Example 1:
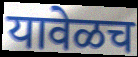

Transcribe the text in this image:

यावेळच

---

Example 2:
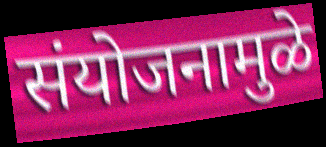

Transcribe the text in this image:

संयोजनामुळे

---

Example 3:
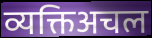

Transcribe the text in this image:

व्यक्तिअचल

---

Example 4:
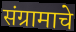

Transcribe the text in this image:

संग्रामाचे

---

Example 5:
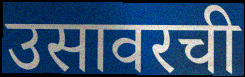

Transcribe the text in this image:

उसावरची